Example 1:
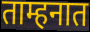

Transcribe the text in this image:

ताम्हनात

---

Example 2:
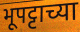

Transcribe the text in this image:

भूपट्टाच्या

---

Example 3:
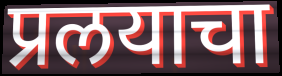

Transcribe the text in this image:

प्रलयाचा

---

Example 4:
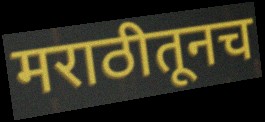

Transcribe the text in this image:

मराठीतूनच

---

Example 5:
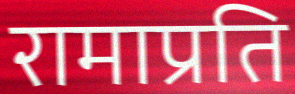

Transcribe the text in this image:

रामाप्रति